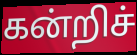
கன்றிச்